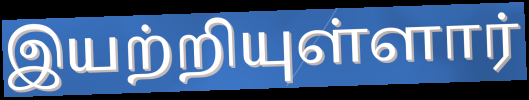
இயற்றியுள்ளார்